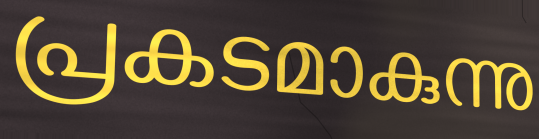
പ്രകടമാകുന്നു